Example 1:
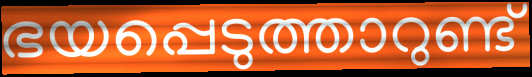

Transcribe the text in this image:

ഭയപ്പെടുത്താറുണ്ട്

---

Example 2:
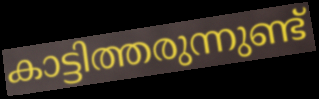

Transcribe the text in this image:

കാട്ടിത്തരുന്നുണ്ട്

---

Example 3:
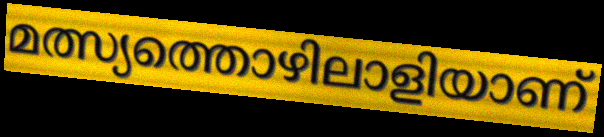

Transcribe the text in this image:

മത്സ്യത്തൊഴിലാളിയാണ്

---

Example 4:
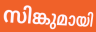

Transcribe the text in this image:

സിങ്കുമായി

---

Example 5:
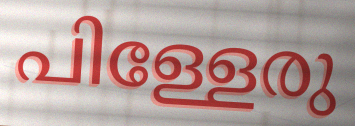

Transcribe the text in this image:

പിള്ളേരു